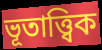
ভূতাত্ত্বিক